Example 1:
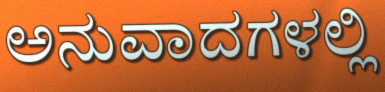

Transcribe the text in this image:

ಅನುವಾದಗಳಲ್ಲಿ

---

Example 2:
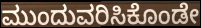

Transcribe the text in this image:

ಮುಂದುವರಿಸಿಕೊಂಡೇ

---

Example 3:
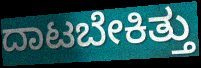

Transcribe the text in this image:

ದಾಟಬೇಕಿತ್ತು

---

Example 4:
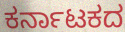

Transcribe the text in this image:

ಕರ್ನಾಟಕದ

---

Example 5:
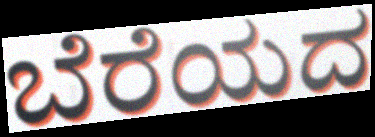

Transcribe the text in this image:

ಬೆರೆಯದ